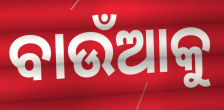
ବାଉଁଆକୁ